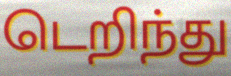
டெறிந்து